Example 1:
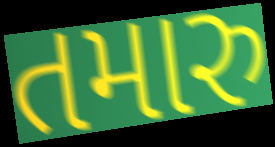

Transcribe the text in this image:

તમારુ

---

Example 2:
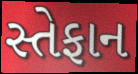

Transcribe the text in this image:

સ્તેફાન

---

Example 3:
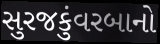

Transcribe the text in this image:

સુરજકુંવરબાનો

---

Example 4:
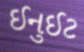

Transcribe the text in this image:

ઈનુઈટ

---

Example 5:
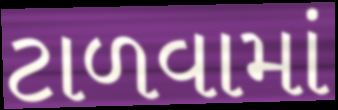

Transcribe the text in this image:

ટાળવામાં